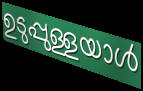
ഉടുപ്പുള്ളയാൾ